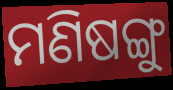
ମଣିଷଙ୍ଗୁ